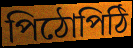
পিঠোপিঠি